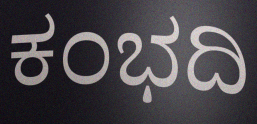
ಕಂಭದಿ